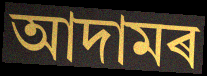
আদামৰ